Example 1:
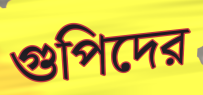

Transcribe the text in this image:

গুপিদের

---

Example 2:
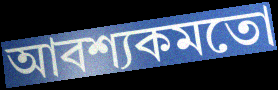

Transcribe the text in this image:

আবশ্যকমতো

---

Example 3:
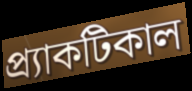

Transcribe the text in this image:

প্র্যাকটিকাল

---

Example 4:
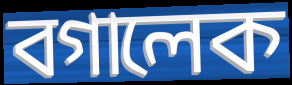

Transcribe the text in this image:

বগালেক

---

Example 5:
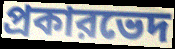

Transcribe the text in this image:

প্রকারভেদ